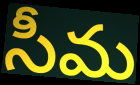
సీమ